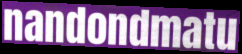
nandondmatu